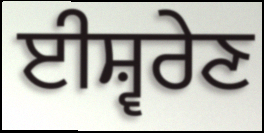
ਈਸ਼੍ਵਰੇਣ